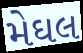
મેઘલ